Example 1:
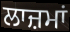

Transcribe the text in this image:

ਲਾਜ਼ਮਾਂ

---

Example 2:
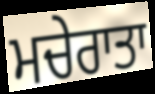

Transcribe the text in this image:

ਮਚੇਰਾਤਾ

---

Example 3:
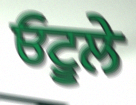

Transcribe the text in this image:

ਓਟੂਲੇ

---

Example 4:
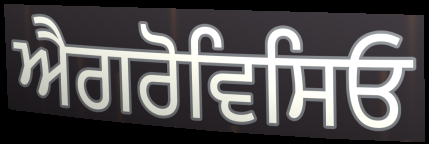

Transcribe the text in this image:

ਐਗਰੋਵਿਸਿਓ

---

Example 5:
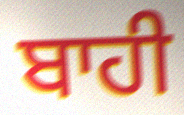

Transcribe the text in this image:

ਬਾਹੀ